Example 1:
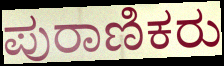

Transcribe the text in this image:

ಪುರಾಣಿಕರು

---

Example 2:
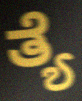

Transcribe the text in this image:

ತ್ಯೆ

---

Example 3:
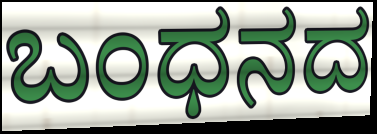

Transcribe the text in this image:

ಬಂಧನದ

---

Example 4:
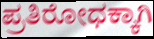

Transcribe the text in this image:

ಪ್ರತಿರೋಧಕ್ಕಾಗಿ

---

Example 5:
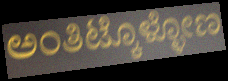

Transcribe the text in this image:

ಅಂತಿಟ್ಕೊಳ್ಳೋಣ